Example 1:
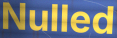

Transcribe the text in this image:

Nulled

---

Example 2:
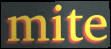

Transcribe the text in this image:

mite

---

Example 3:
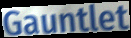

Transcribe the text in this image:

Gauntlet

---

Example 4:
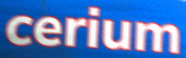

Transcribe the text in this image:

cerium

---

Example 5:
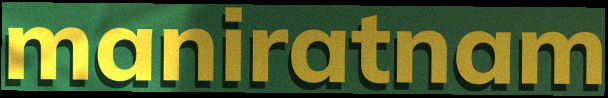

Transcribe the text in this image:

maniratnam